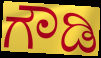
ಗೌಡಿ